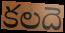
కలదె